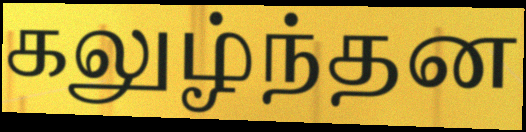
கலுழ்ந்தன